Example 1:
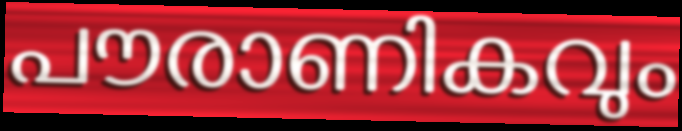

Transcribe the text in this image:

പൗരാണികവും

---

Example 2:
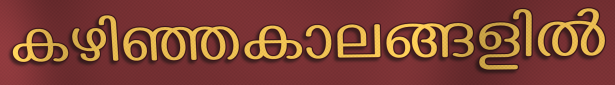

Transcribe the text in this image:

കഴിഞ്ഞകാലങ്ങളിൽ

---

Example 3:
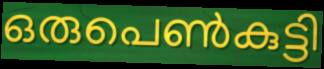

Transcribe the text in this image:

ഒരുപെൺകുട്ടി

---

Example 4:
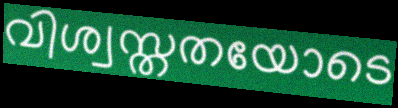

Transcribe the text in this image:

വിശ്വസ്തതയോടെ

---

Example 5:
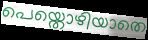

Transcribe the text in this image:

പെയ്തൊഴിയാതെ